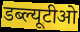
डब्ल्यूटीओ